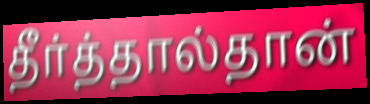
தீர்த்தால்தான்